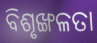
ବିଶୃଙ୍ଖଳତା